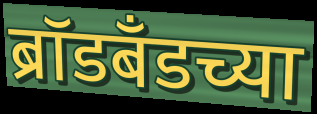
ब्रॉडबँडच्या